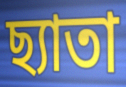
ছ্যাতা